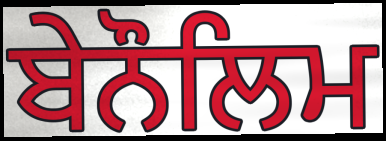
ਬੇਨੌਲਿਮ